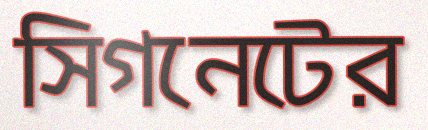
সিগনেটের